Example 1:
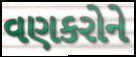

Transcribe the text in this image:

વણકરોને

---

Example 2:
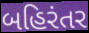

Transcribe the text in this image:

બહિરંતર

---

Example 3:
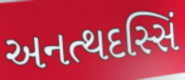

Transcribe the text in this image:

અનત્થદસ્સિં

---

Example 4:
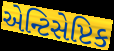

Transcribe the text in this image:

એન્ટિસેપ્ટિક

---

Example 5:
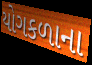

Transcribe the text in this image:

યોગકળાના